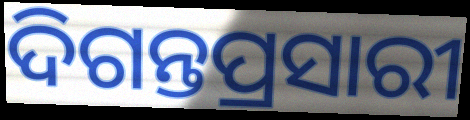
ଦିଗନ୍ତପ୍ରସାରୀ